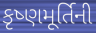
કૃષ્ણમૂર્તિની